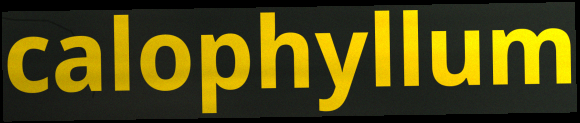
calophyllum